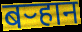
बऱ्हान